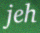
jeh